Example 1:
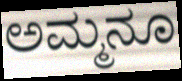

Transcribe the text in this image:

ಅಮ್ಮನೂ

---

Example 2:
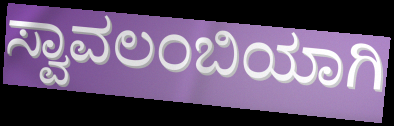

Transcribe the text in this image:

ಸ್ವಾವಲಂಬಿಯಾಗಿ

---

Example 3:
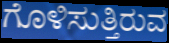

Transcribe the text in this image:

ಗೊಳಿಸುತ್ತಿರುವ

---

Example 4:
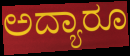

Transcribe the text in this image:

ಅದ್ಯಾರೂ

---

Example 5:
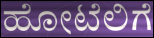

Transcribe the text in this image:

ಹೋಟೆಲಿಗೆ